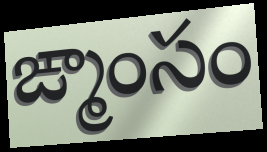
ఙ్మాంసం